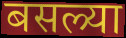
बसल्या